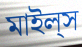
মাইল্‌স